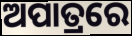
ଅପାତ୍ରରେ